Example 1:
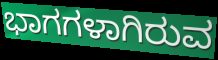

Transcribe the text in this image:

ಭಾಗಗಳಾಗಿರುವ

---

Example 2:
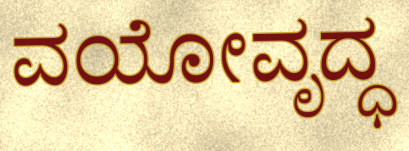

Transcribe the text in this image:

ವಯೋವೃದ್ಧ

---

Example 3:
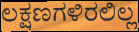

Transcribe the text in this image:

ಲಕ್ಷಣಗಳಿರಲಿಲ್ಲ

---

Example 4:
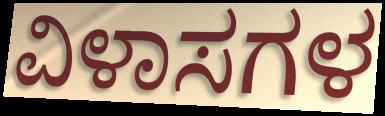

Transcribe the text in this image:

ವಿಳಾಸಗಳ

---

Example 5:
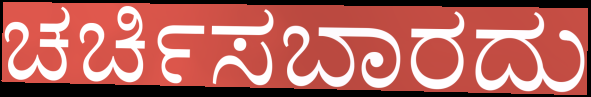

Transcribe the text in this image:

ಚರ್ಚಿಸಬಾರದು